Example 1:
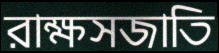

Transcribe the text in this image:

রাক্ষসজাতি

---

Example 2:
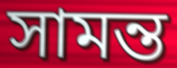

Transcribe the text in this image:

সামন্ত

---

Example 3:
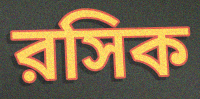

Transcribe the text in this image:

রসিক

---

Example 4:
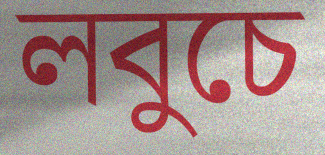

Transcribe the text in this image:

লবুচে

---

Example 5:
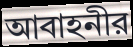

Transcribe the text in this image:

আবাহনীর